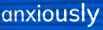
anxiously